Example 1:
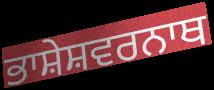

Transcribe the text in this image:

ਭਾਸ਼ੇਸ਼ਵਰਨਾਥ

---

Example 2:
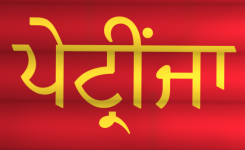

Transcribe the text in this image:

ਪੇਟ੍ਰੀਂਜਾ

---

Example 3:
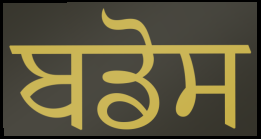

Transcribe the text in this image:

ਬਡੋਸ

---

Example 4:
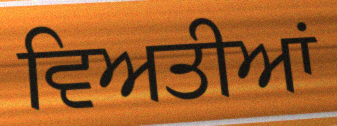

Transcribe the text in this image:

ਵਿਅਤੀਆਂ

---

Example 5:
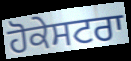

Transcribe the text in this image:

ਹੋਕੇਸਟਰਾ